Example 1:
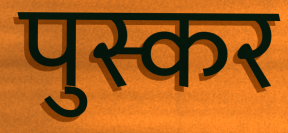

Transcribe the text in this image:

पुस्कर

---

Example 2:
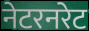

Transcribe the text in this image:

नेटरनरेट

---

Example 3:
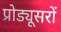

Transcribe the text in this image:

प्रोड्यूसरों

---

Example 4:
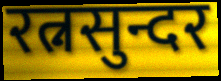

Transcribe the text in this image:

रत्नसुन्दर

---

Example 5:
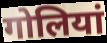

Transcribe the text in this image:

गोलियां